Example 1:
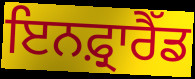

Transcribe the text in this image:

ਇਨਫ਼੍ਰਾਰੈੱਡ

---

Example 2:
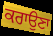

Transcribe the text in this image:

ਕਰਾਉਣਾ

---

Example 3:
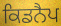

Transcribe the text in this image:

ਕਿਡਨੈਪ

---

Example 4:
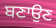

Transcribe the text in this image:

ਬਣਾਉਣ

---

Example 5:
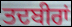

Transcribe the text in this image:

ਤਦਬੀਰਾਂ